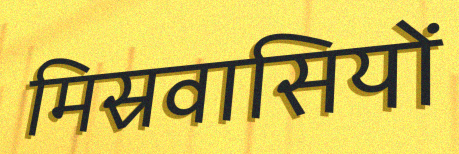
मिस्रवासियों